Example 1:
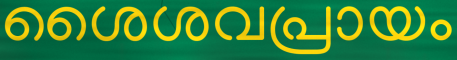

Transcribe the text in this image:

ശൈശവപ്രായം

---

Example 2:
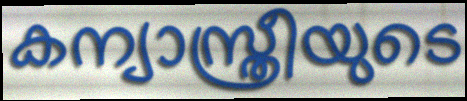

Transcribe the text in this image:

കന്യാസ്ത്രീയുടെ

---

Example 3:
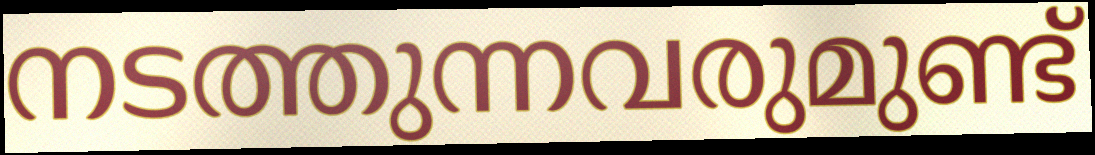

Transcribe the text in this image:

നടത്തുന്നവരുമുണ്ട്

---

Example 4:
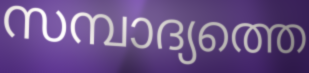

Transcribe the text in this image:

സമ്പാദ്യത്തെ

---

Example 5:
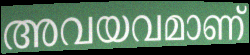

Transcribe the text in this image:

അവയവമാണ്